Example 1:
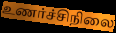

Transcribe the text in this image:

உணர்ச்சிநிலை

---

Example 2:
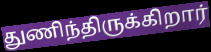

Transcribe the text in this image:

துணிந்திருக்கிறார்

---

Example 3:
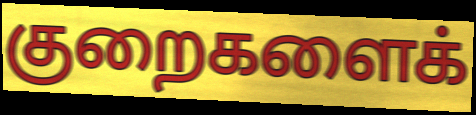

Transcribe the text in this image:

குறைகளைக்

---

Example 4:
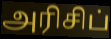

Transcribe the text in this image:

அரிசிப்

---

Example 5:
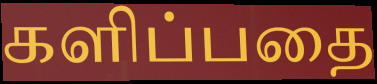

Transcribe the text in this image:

களிப்பதை